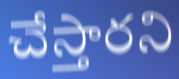
చేస్తారని